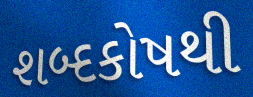
શબ્દકોષથી